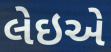
લેઇએ